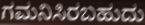
ಗಮನಿಸಿರಬಹುದು